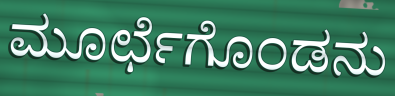
ಮೂರ್ಛೆಗೊಂಡನು